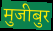
मुजीबुर